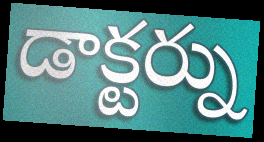
డాక్టర్ను